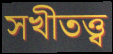
সখীতত্ত্ব